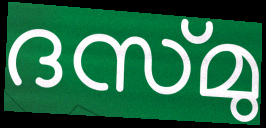
ദസ്മു